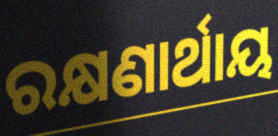
ରକ୍ଷଣାର୍ଥାୟ